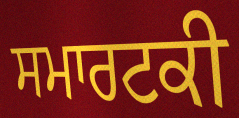
ਸਮਾਰਟਕੀ